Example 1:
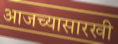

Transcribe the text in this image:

आजच्यासारखी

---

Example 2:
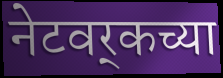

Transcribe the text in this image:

नेटवर्कच्या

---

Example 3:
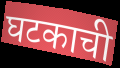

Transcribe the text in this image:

घटकाची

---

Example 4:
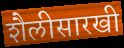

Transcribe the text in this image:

शैलीसारखी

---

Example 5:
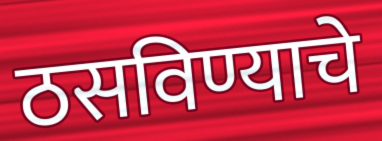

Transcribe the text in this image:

ठसविण्याचे